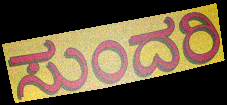
ಸುಂದರಿ